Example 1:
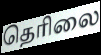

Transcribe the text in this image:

தெரிலை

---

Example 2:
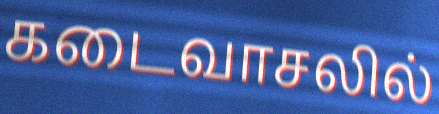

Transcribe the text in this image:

கடைவாசலில்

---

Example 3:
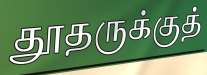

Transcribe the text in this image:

தூதருக்குத்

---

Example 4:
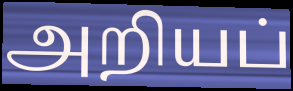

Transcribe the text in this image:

அறியப்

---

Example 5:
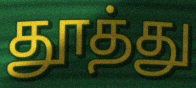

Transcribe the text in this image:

தூத்து